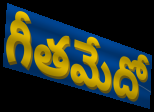
గీతమేదో